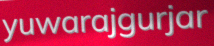
yuwarajgurjar